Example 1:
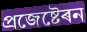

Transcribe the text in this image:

প্ৰজেষ্টেৰন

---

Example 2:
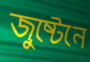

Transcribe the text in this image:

জুষ্টেনে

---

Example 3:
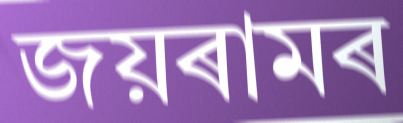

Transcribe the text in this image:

জয়ৰামৰ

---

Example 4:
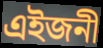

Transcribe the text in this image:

এইজনী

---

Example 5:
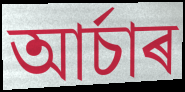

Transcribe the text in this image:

আৰ্চাৰ